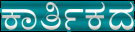
ಕಾರ್ತಿಕದ